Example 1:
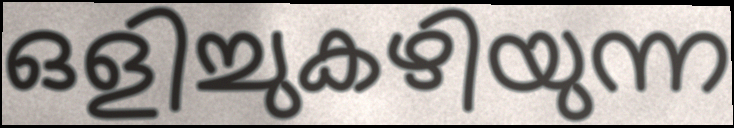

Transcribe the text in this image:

ഒളിച്ചുകഴിയുന്ന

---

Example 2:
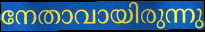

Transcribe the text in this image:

നേതാവായിരുന്നു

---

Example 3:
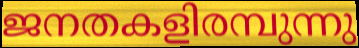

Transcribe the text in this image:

ജനതകളിരമ്പുന്നു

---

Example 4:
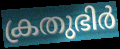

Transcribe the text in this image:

ക്രതുഭിർ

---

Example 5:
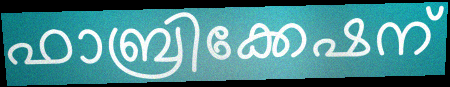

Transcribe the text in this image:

ഫാബ്രിക്കേഷന്